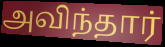
அவிந்தார்